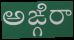
అఙ్గిరా